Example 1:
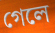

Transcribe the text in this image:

গেলে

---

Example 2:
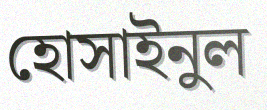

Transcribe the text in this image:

হোসাইনুল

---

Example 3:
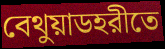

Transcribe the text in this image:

বেথুয়াডহরীতে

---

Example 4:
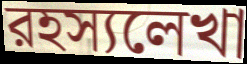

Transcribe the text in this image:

রহস্যলেখা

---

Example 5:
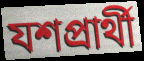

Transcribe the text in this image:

যশপ্রার্থী